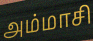
அம்மாசி